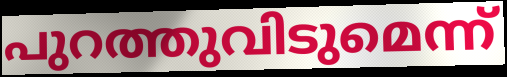
പുറത്തുവിടുമെന്ന്